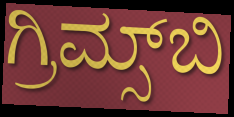
ಗ್ರಿಮ್ಸ್‌ಬಿ